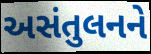
અસંતુલનને